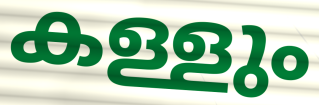
കള്ളും